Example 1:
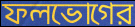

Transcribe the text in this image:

ফলভোগের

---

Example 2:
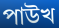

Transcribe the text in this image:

পাউখ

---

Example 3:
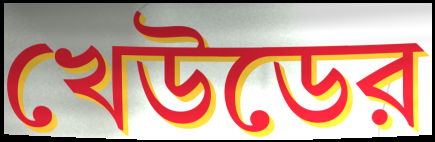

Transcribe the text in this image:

খেউডের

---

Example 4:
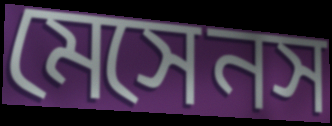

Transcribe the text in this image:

মেসেনস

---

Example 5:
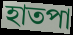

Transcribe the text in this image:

হাতপা